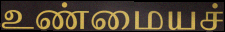
உண்மையச்